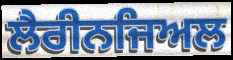
ਲੈਰੀਨਜਿਅਲ